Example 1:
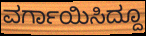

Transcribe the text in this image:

ವರ್ಗಾಯಿಸಿದ್ದೂ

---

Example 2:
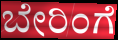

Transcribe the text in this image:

ಬೇರಿಂಗೆ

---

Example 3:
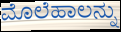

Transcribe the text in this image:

ಮೊಲೆಹಾಲನ್ನು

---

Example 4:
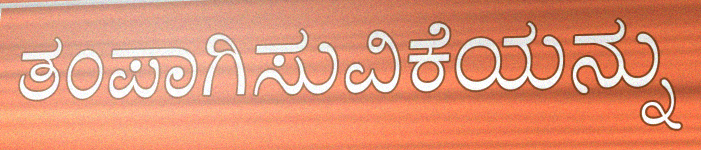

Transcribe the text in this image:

ತಂಪಾಗಿಸುವಿಕೆಯನ್ನು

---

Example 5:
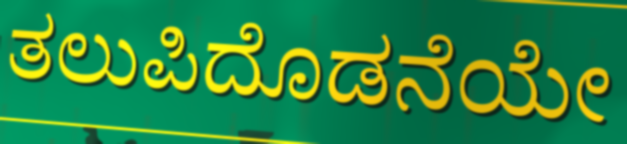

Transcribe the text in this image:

ತಲುಪಿದೊಡನೆಯೇ